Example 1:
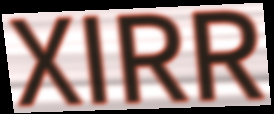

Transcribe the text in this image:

XIRR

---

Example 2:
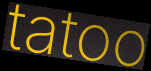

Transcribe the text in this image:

tatoo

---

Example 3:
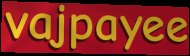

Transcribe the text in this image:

vajpayee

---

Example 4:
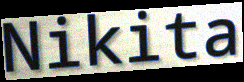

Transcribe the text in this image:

Nikita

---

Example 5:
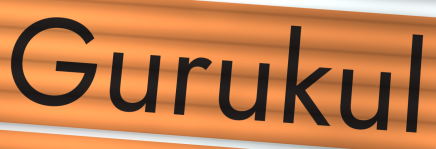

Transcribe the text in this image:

Gurukul